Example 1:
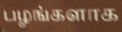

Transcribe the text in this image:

பழங்களாக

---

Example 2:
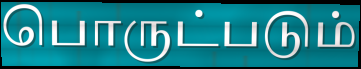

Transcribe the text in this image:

பொருட்படும்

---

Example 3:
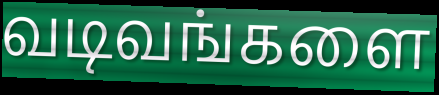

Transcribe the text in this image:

வடிவங்களை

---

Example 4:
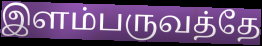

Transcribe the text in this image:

இளம்பருவத்தே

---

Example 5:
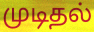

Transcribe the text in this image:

முடிதல்